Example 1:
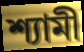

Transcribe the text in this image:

শ্যামী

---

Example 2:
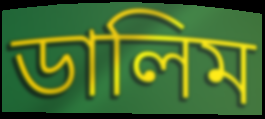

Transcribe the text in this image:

ডালিম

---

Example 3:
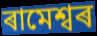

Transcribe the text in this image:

ৰামেশ্বৰ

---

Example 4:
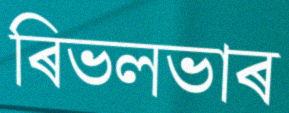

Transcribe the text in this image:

ৰিভলভাৰ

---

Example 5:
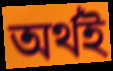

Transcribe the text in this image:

অৰ্থই